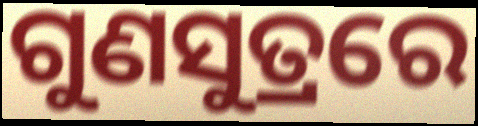
ଗୁଣସୁତ୍ରରେ